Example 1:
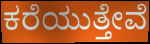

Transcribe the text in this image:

ಕರೆಯುತ್ತೇವೆ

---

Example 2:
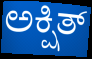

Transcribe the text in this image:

ಅಕ್ಷಿತ್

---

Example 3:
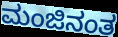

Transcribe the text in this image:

ಮಂಜಿನಂತ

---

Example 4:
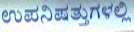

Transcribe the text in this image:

ಉಪನಿಷತ್ತುಗಳಲ್ಲಿ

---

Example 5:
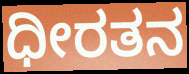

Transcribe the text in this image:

ಧೀರತನ